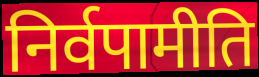
निर्वपामीति